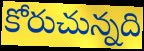
కోరుచున్నది